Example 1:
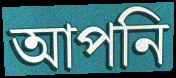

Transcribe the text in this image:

আপনি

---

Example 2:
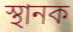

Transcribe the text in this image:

স্থানক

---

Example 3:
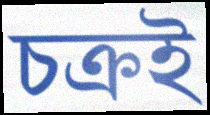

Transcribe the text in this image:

চক্ৰই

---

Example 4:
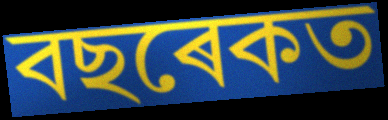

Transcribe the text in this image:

বছৰেকত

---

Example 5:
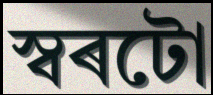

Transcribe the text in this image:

স্বৰটো